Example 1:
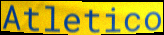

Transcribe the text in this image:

Atletico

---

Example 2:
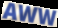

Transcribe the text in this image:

AWW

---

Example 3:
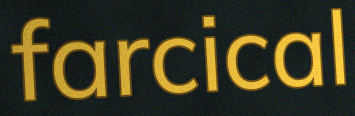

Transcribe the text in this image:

farcical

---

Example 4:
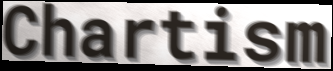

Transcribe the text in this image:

Chartism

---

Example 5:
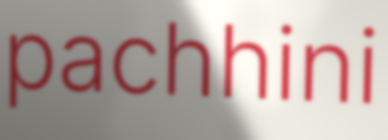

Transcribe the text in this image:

pachhini